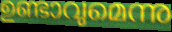
ഉണ്ടാവുമെന്നു